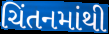
ચિંતનમાંથી